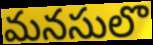
మనసులొ